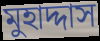
মুহাদ্দাস